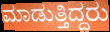
ಮಾಡುತ್ತಿದ್ದರು